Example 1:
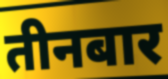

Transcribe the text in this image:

तीनबार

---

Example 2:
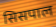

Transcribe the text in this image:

सिसपाल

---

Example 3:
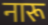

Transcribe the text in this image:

नारू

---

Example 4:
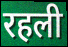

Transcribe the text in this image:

रहली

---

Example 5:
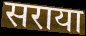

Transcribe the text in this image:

सराया